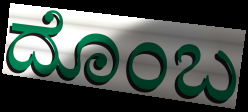
ದೊಂಬ